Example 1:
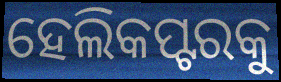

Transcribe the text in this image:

ହେଲିକପ୍ଟରକୁ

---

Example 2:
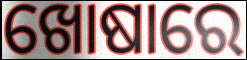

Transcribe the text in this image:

ଖୋଷାରେ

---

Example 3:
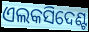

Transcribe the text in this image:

ଏଲକସିଦେଣ୍ଟ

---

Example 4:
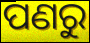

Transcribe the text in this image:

ପଣରୁ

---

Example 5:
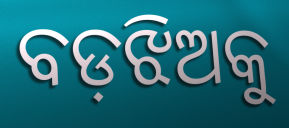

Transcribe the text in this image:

ବଡ଼ଝିଅକୁ